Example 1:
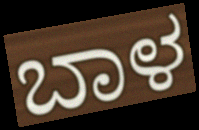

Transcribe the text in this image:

ಬಾಳ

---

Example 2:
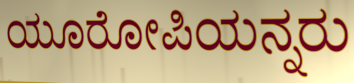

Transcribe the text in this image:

ಯೂರೋಪಿಯನ್ನರು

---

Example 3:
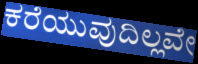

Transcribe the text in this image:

ಕರೆಯುವುದಿಲ್ಲವೇ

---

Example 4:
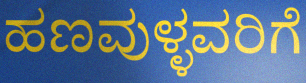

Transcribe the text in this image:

ಹಣವುಳ್ಳವರಿಗೆ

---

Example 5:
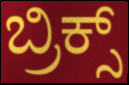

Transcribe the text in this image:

ಬ್ರಿಕ್ಸ್